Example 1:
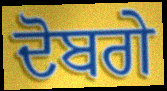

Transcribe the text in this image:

ਦੋਬਗੇ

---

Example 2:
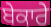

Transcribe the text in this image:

ਬੇਕਾਰੇ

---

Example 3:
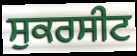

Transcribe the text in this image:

ਸੁਕਰਸੀਟ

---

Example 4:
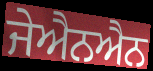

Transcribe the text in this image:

ਜੇਐਨਐਨ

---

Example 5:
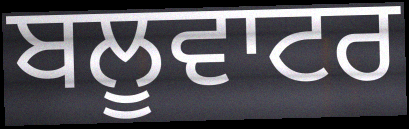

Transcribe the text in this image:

ਬਲੂਵਾਟਰ